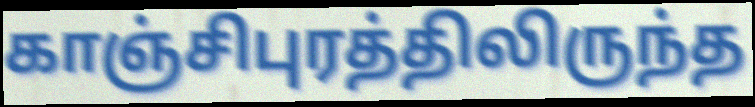
காஞ்சிபுரத்திலிருந்த